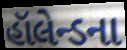
હૉલેન્ડના